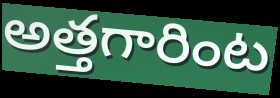
అత్తగారింట